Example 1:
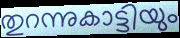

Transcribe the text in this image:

തുറന്നുകാട്ടിയും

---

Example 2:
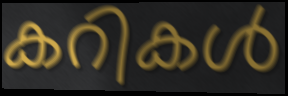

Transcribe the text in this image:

കറികൾ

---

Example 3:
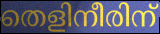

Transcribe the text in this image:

തെളിനീരിന്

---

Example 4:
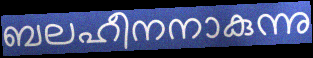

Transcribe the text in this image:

ബലഹീനനാകുന്നു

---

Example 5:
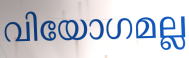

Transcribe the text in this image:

വിയോഗമല്ല